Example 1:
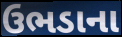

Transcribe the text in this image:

ઉભડાના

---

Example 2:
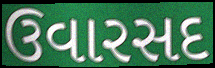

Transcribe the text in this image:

ઉવારસદ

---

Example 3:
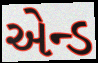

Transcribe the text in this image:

એન્ડ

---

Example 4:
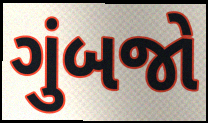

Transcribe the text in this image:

ગુંબજો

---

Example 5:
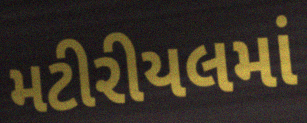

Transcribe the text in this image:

મટીરીયલમાં